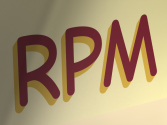
RPM